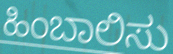
ಹಿಂಬಾಲಿಸು